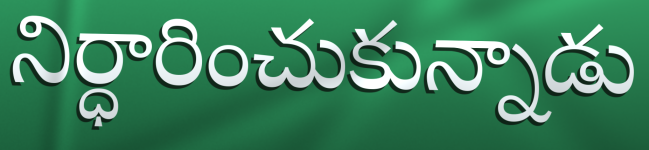
నిర్ధారించుకున్నాడు